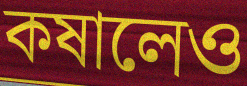
কষালেও